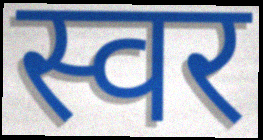
स्वर